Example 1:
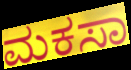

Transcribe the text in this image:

ಮಕಸಾ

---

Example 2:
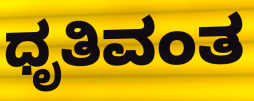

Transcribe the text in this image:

ಧೃತಿವಂತ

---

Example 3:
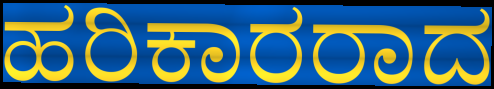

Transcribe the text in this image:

ಹರಿಕಾರರಾದ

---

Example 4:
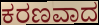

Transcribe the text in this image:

ಕರಣವಾದ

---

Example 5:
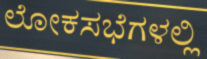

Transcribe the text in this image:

ಲೋಕಸಭೆಗಳಲ್ಲಿ